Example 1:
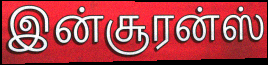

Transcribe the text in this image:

இன்சூரன்ஸ்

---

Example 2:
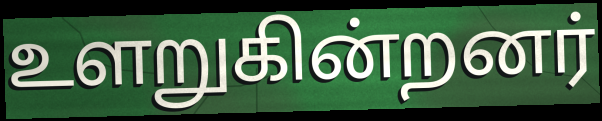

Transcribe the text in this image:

உளறுகின்றனர்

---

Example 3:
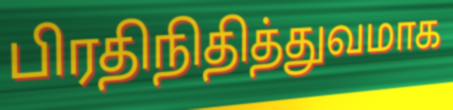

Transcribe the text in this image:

பிரதிநிதித்துவமாக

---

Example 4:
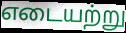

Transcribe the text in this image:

எடையற்று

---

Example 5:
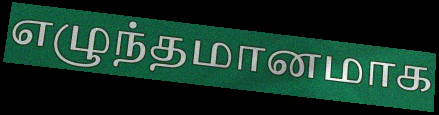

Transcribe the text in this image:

எழுந்தமானமாக